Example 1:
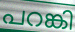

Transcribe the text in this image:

പറങ്കി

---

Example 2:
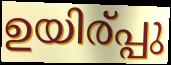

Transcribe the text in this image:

ഉയിര്പ്പു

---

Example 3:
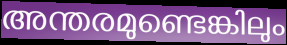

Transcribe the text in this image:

അന്തരമുണ്ടെങ്കിലും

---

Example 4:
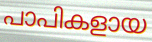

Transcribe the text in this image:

പാപികളായ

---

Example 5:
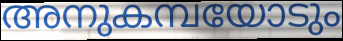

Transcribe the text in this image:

അനുകമ്പയോടും